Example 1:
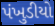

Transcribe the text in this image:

પંખુડીયો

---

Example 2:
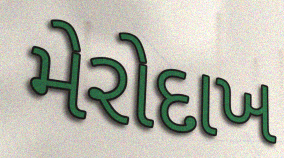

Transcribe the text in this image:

મેરોદાખ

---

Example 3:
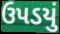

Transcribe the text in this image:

ઉપડયું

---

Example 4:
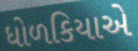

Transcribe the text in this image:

ધોળકિયાએ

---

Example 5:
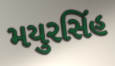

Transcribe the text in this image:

મયુરસિંહ